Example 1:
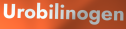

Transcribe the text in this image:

Urobilinogen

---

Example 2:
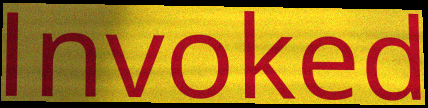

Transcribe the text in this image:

Invoked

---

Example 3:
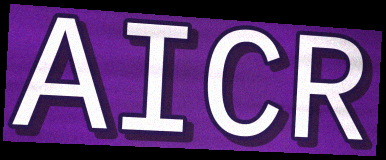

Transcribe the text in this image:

AICR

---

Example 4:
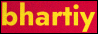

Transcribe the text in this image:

bhartiy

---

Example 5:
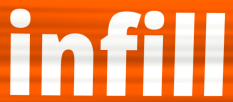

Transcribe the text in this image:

infill